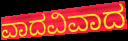
ವಾದವಿವಾದ